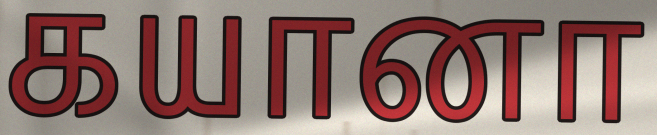
கயானா